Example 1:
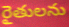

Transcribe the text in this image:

రైతులను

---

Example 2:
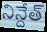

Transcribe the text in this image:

నిన్దేత్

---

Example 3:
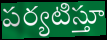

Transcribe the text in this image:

పర్యటిస్తూ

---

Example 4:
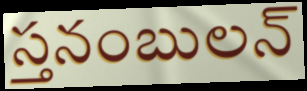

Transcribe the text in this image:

స్తనంబులన్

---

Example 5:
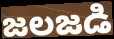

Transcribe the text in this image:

జలజడి